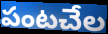
పంటచేల